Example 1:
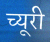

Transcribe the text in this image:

च्यूरी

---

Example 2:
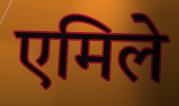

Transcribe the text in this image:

एमिले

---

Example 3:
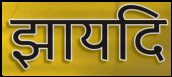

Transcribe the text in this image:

झायदि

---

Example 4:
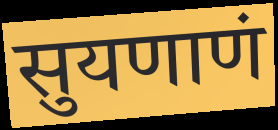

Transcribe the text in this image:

सुयणाणं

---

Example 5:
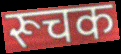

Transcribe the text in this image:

रूचक